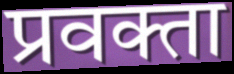
प्रवक्ता